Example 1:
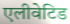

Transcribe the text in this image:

एलीवेटिड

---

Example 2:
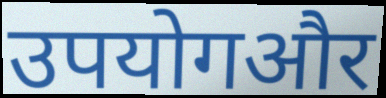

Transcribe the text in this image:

उपयोगऔर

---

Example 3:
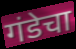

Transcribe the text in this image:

गंडेचा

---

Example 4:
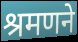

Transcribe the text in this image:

श्रमणने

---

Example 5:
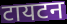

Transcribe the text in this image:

टायटन